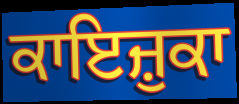
ਕਾਇਜ਼ੁਕਾ